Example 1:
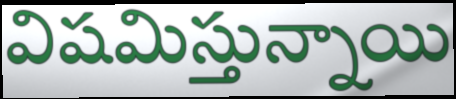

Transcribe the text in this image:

విషమిస్తున్నాయి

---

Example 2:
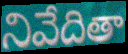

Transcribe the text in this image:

నివేదితా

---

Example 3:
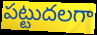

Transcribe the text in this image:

పట్టుదలగా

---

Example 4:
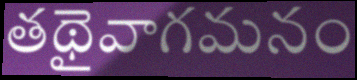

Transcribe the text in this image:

తథైవాగమనం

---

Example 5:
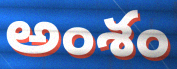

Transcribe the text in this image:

అంశం